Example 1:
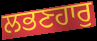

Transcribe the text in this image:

ਲਭਣਹਾਰੁ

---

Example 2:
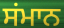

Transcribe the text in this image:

ਸਂਮਾਨ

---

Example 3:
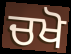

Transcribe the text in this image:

ਚਖੋ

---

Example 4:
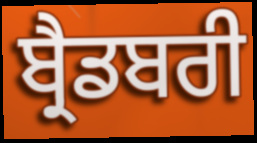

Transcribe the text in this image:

ਬ੍ਰੈਡਬਰੀ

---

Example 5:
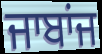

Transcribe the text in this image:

ਜਾਬਾਂਜ